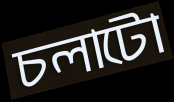
চলাটো